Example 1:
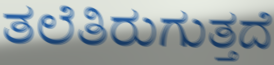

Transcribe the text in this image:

ತಲೆತಿರುಗುತ್ತದೆ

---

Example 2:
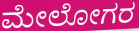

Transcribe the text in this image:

ಮೇಲೋಗರ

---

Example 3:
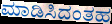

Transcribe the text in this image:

ಮಾಡಿಸಿದಂತಹ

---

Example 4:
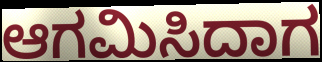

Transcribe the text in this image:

ಆಗಮಿಸಿದಾಗ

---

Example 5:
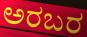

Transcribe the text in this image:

ಅರಬರ